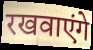
रखवाएंगे